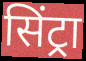
सिंट्रा